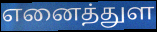
எனைத்துள